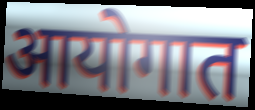
आयोगात